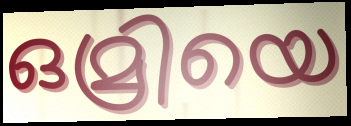
ഒമ്രിയെ